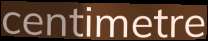
centimetre